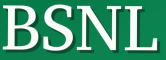
BSNL